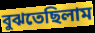
বুঝতেছিলাম